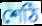
শেঠি